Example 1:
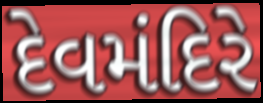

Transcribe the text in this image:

દેવમંદિરે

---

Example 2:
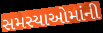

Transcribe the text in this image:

સમસ્યાઓમાંની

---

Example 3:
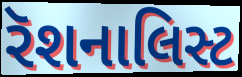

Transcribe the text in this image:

રૅશનાલિસ્ટ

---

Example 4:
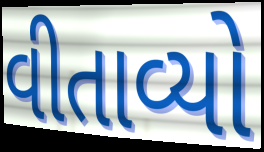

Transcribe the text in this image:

વીતાવ્યો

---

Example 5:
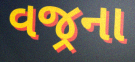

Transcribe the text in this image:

વજ્રના